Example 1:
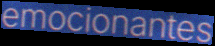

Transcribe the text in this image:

emocionantes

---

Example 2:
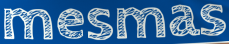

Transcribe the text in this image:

mesmas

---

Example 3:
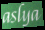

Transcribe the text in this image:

aslya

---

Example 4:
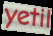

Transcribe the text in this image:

yetil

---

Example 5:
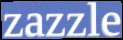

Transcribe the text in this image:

zazzle